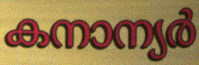
കനാന്യർ